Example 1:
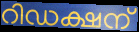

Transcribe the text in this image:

റിഡക്ഷന്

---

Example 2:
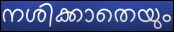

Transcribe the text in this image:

നശിക്കാതെയും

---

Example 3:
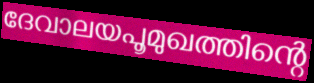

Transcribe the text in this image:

ദേവാലയപൂമുഖത്തിന്റെ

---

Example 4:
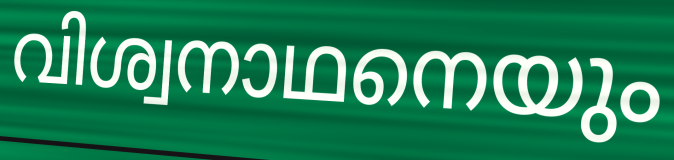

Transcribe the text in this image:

വിശ്വനാഥനെയും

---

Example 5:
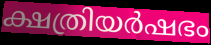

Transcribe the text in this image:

ക്ഷത്രിയർഷഭം